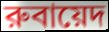
রুবায়েদ